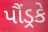
પૌંડ્રકે